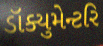
ડૉક્યુમેન્ટરિ